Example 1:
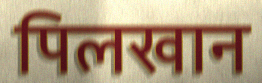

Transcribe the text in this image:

पिलखान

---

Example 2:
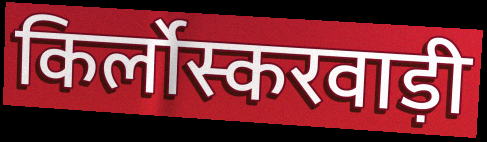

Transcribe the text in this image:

किर्लोस्करवाड़ी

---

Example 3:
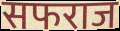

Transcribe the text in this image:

सफराज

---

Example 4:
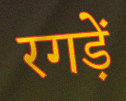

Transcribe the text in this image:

रगड़ें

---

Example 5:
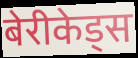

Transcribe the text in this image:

बेरीकेड्स